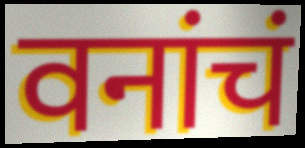
वनांचं